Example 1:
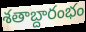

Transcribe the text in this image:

శతాబ్దారంభం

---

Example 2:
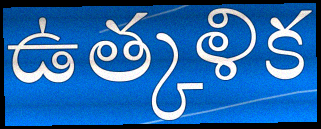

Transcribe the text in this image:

ఉత్కళిక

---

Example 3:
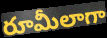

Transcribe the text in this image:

రూమీలాగా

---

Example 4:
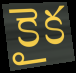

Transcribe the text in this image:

కైక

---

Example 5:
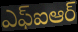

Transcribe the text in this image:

ఎఫ్ఐఆర్